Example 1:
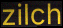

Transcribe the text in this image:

zilch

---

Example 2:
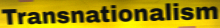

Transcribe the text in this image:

Transnationalism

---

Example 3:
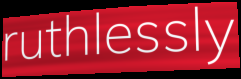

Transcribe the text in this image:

ruthlessly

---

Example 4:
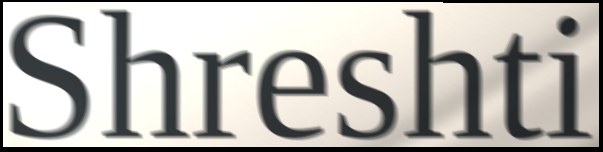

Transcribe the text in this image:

Shreshti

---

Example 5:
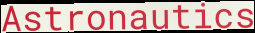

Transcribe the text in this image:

Astronautics